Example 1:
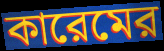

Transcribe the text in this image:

কারেমের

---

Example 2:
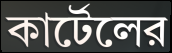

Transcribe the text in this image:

কার্টেলের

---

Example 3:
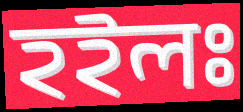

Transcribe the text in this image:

হইলঃ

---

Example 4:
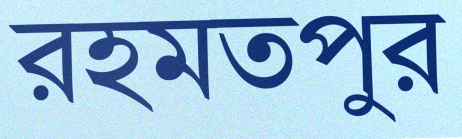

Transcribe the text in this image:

রহমতপুর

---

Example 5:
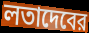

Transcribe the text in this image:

লতাদেবের